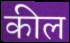
कील